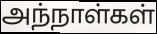
அந்நாள்கள்